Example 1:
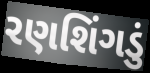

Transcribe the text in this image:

રણશિંગડું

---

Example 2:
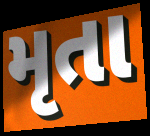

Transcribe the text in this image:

મૃતા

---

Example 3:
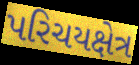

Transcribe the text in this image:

પરિચયક્ષેત્ર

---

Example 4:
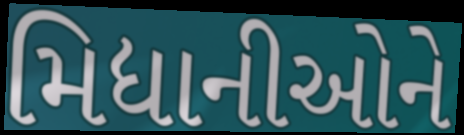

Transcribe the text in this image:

મિદ્યાનીઓને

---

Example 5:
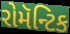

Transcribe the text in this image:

રોમૅન્ટિક